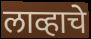
लाव्हाचे